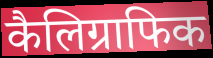
कैलिग्राफिक